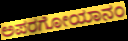
ಅಪರಗೋಯಾನಂ